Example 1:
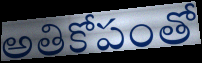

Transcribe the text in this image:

అతికోపంతో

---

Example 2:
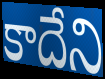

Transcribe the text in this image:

కాదేని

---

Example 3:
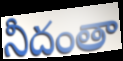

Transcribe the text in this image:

నీదంతా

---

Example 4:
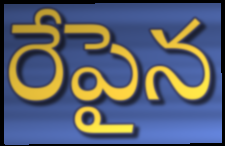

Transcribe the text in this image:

రేపైన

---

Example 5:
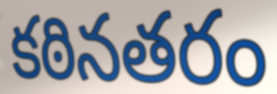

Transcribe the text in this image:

కఠినతరం